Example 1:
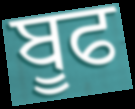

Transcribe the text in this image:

ਬੂਫ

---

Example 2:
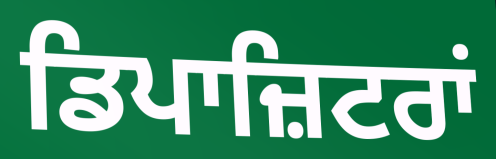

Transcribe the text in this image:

ਡਿਪਾਜ਼ਿਟਰਾਂ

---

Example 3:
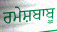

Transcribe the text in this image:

ਰਮੇਸ਼ਬਾਬੂ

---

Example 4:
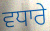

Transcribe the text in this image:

ਵਧਾਰੇ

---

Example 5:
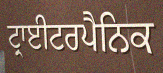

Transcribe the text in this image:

ਟ੍ਰਾਈਟਰਪੈਨਿਕ